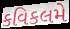
કવિકલમે